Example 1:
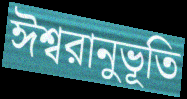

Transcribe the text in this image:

ঈশ্বরানুভূতি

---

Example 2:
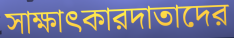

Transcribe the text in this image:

সাক্ষাৎকারদাতাদের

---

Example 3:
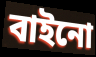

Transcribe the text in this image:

বাইনো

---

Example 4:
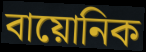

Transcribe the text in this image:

বায়োনিক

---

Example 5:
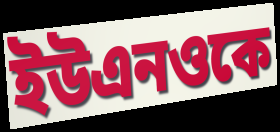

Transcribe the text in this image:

ইউএনওকে